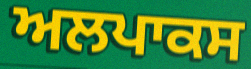
ਅਲਪਾਕਸ